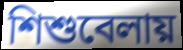
শিশুবেলায়